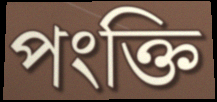
পংক্তি